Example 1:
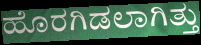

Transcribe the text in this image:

ಹೊರಗಿಡಲಾಗಿತ್ತು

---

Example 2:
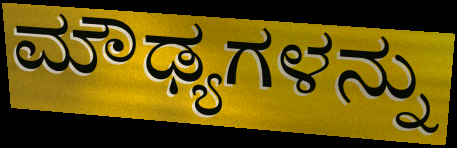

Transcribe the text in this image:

ಮೌಢ್ಯಗಳನ್ನು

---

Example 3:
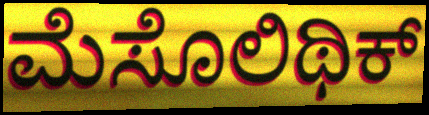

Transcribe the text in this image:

ಮೆಸೊಲಿಥಿಕ್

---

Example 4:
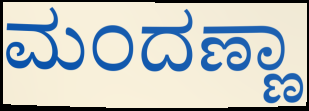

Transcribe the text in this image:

ಮಂದಣ್ಣಾ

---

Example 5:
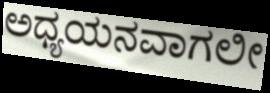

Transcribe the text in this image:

ಅಧ್ಯಯನವಾಗಲೀ